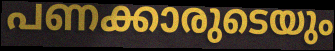
പണക്കാരുടെയും